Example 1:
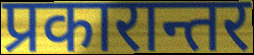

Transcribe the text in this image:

प्रकारान्तर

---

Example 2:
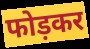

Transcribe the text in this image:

फोड़कर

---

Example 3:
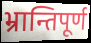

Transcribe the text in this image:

भ्रान्तिपूर्ण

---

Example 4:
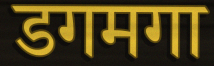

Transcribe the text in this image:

डगमगा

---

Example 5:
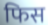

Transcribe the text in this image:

फिस